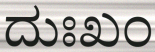
ದುಃಖಂ